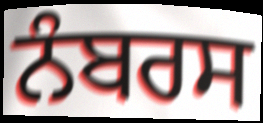
ਨੰਬਰਸ